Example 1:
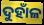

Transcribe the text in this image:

ଦୁହାଁଳ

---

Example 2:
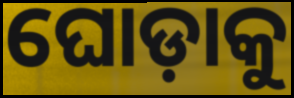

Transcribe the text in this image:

ଘୋଡ଼ାକୁ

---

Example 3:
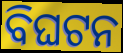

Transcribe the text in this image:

ବିଘଟନ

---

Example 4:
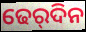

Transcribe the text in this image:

ଢେର୍‌ଦିନ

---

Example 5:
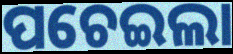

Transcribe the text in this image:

ପଚେଇଲା